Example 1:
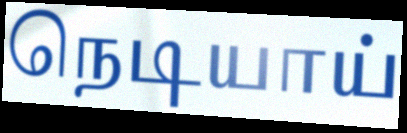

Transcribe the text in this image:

நெடியாய்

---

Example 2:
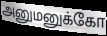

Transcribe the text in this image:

அனுமனுக்கோ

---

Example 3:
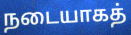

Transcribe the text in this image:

நடையாகத்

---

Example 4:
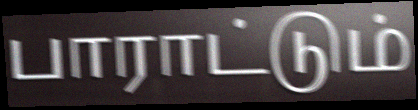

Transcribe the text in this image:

பாராட்டும்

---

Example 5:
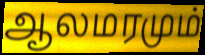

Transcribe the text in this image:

ஆலமரமும்